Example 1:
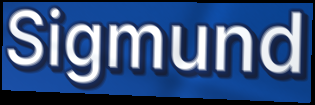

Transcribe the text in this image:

Sigmund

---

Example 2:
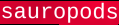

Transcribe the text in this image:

sauropods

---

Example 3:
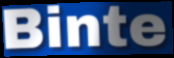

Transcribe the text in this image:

Binte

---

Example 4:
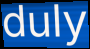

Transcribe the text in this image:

duly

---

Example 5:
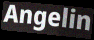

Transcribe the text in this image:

Angelin